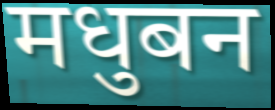
मधुबन